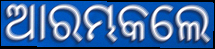
ଆରମ୍ଭକଲେ